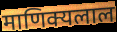
माणिक्यलाल